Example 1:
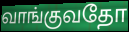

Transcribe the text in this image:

வாங்குவதோ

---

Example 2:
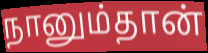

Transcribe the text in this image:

நானும்தான்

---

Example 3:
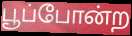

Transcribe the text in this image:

பூப்போன்ற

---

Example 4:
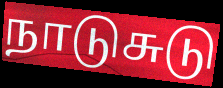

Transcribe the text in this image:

நாடுசுடு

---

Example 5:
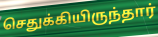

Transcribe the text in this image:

செதுக்கியிருந்தார்